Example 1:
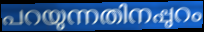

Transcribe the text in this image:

പറയുന്നതിനപ്പുറം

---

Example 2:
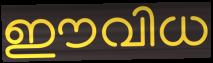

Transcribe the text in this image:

ഈവിധ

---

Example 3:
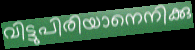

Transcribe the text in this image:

വിട്ടുപിരിയാനെനിക്കു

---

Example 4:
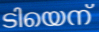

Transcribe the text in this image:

ടിയെന്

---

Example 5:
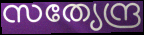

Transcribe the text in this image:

സത്യേന്ദ്ര